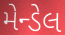
મેન્ડેલ